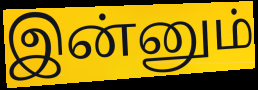
இன்னும்